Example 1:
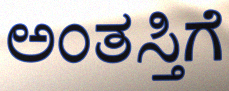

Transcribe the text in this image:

ಅಂತಸ್ತಿಗೆ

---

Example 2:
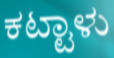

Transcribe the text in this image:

ಕಟ್ಟಾಳು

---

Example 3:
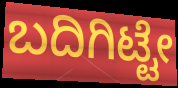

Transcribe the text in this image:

ಬದಿಗಿಟ್ಟೇ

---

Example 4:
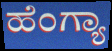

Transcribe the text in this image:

ಹೆಂಗ್ಯಾ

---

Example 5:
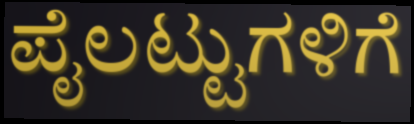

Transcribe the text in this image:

ಪೈಲಟ್ಟುಗಳಿಗೆ